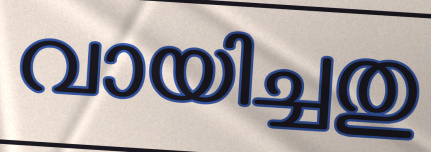
വായിച്ചതു